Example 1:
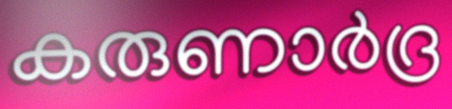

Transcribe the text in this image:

കരുണാർദ്ര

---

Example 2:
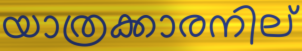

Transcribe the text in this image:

യാത്രക്കാരനില്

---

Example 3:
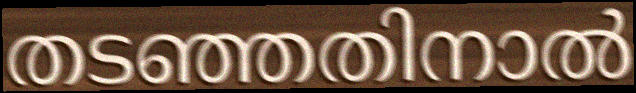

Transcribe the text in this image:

തടഞ്ഞതിനാൽ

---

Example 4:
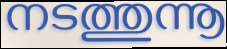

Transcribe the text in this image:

നടത്തുന്നൂ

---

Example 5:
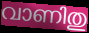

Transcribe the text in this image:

വാണിതു